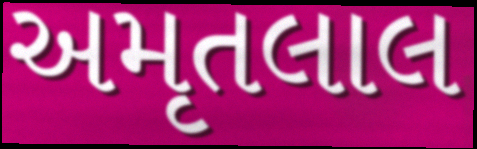
અમૃતલાલ